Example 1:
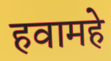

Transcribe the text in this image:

हवामहे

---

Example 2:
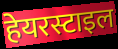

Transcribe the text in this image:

हेयरस्टाइल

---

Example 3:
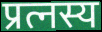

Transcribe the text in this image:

प्रत्नस्य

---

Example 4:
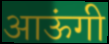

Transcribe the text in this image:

आऊंगी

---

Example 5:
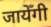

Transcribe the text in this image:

जायेँगी